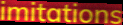
imitations